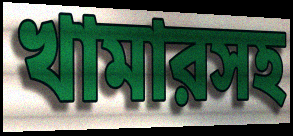
খামারসহ